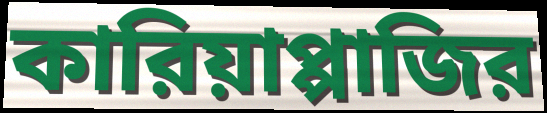
কারিয়াপ্পাজির